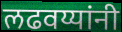
लढवय्यांनी